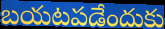
బయటపడేందుకు